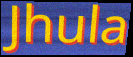
Jhula